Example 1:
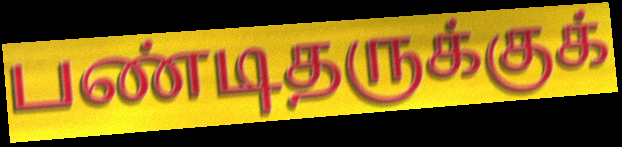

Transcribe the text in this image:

பண்டிதருக்குக்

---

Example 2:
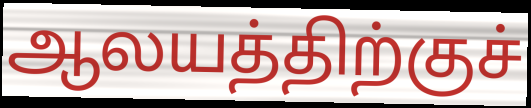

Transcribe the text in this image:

ஆலயத்திற்குச்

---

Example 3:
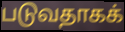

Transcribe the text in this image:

படுவதாகக்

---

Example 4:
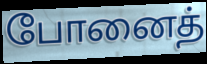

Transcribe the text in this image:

போனைத்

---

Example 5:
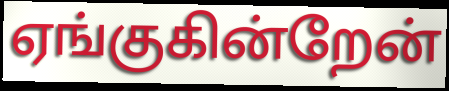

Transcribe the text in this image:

ஏங்குகின்றேன்